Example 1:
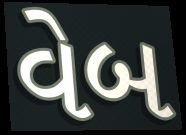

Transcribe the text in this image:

વેબ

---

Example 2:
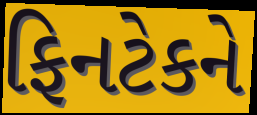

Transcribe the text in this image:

ફિનટેકને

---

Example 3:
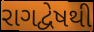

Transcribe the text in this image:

રાગદ્વેષથી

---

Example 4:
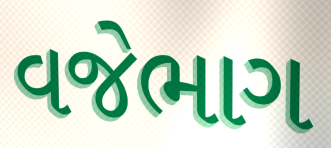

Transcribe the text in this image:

વજેભાગ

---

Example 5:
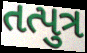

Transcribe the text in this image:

તત્પુત્ર